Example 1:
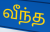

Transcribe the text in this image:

வீந்த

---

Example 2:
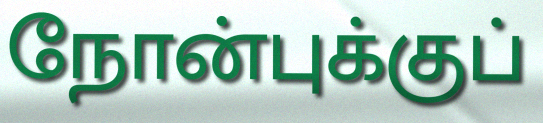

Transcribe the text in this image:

நோன்புக்குப்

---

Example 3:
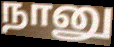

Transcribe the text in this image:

நானு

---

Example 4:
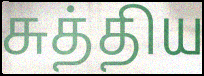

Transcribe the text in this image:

சுத்திய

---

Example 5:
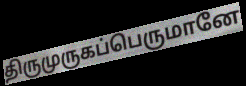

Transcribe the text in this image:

திருமுருகப்பெருமானே